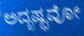
ಅದೃಷ್ಟವೋ